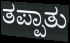
ತಪ್ಪಾತು